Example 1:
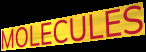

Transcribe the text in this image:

MOLECULES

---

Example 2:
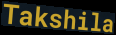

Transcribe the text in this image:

Takshila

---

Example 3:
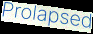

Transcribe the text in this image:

Prolapsed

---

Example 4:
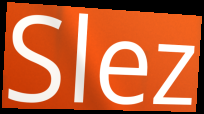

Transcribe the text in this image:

Slez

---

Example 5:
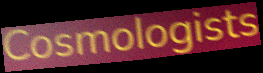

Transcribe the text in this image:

Cosmologists